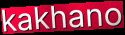
kakhano